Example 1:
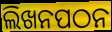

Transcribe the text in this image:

ଲିଖନପଠନ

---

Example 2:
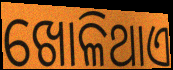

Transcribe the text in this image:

ଖୋଳିଥାଏ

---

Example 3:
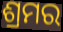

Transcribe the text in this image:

ଶ୍ରମର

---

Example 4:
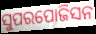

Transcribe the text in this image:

ସୁପରପୋଜିସନ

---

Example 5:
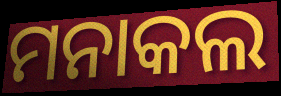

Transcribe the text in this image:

ମନାକଲ